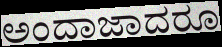
ಅಂದಾಜಾದರೂ